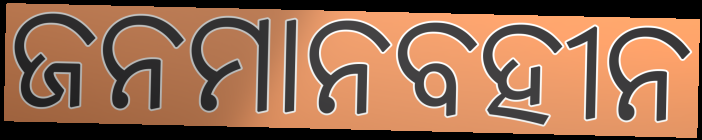
ଜନମାନବହୀନ